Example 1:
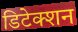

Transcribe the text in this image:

डिटेक्शन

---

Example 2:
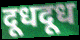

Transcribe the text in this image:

दूधदूध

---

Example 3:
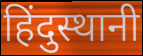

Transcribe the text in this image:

हिंदुस्थानी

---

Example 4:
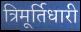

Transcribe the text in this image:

त्रिमूर्तिधारी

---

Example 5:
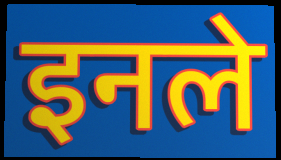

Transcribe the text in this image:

इनले